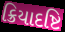
ક્રિયાદષ્ટિ